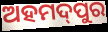
ଅହମଦ୍‌ପୁର